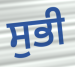
ਸੁਭੀ